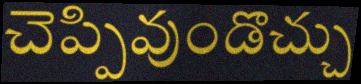
చెప్పివుండొచ్చు